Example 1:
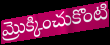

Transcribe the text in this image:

మ్రొక్కించుకొంటి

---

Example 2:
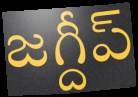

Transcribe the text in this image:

జగ్దీప్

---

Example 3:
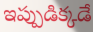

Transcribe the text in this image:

ఇప్పుడిక్కడే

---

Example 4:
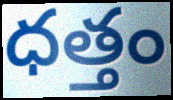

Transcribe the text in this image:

ధత్తం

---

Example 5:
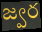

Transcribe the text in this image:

జ్వర